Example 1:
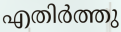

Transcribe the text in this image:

എതിർത്തു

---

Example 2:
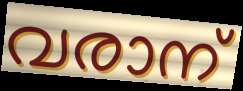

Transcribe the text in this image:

വരാന്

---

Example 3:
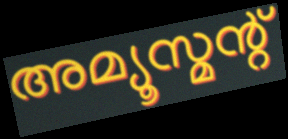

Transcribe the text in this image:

അമ്യൂസ്മന്റ്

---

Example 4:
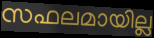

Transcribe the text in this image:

സഫലമായില്ല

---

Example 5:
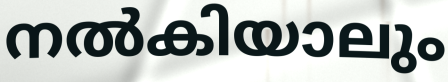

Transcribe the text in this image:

നൽകിയാലും